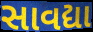
સાવદ્યા